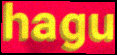
hagu